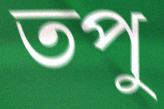
তপু